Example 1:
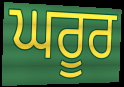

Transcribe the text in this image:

ਘਰੂਰ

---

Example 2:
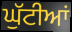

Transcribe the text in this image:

ਘੁੱਟੀਆਂ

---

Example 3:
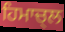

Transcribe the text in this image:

ਹਿਮਾਚ੍ਲ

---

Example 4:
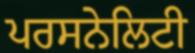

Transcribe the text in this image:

ਪਰਸਨੇਲਿਟੀ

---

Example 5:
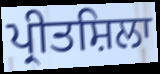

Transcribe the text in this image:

ਪ੍ਰੀਤਸ਼ਿਲਾ